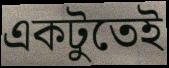
একটুতেই